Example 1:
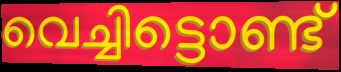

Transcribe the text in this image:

വെച്ചിട്ടൊണ്ട്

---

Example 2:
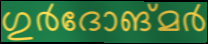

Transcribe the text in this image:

ഗുർദോങ്മർ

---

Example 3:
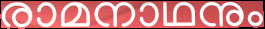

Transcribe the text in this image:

രാമനാഥനും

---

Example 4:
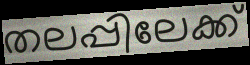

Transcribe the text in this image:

തലപ്പിലേക്ക്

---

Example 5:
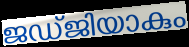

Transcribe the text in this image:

ജഡ്ജിയാകും